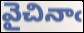
వైచినాఁ